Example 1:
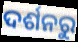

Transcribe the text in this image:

ଦର୍ଶନରୁ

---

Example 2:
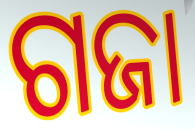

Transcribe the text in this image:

ଗଜା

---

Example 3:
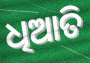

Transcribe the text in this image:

ଧିଆତି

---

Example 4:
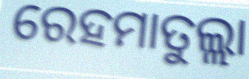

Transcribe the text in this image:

ରେହମାତୁଲ୍ଲା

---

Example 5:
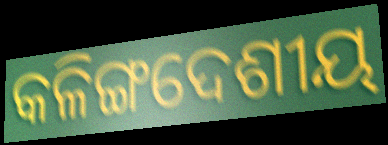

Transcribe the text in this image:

କଳିଙ୍ଗଦେଶୀୟ